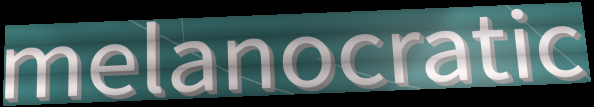
melanocratic